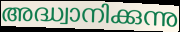
അദ്ധ്വാനിക്കുന്നു